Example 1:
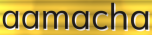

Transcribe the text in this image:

aamacha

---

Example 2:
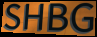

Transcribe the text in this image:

SHBG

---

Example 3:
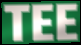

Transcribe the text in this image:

TEE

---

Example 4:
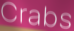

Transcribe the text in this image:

Crabs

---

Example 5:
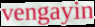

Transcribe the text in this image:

vengayin